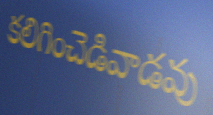
కలిగించెడివాడవు